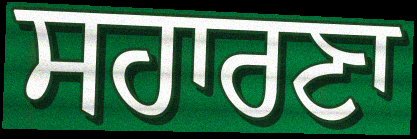
ਸਹਾਰਣਾ